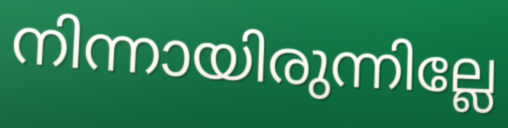
നിന്നായിരുന്നില്ലേ